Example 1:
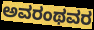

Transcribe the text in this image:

ಅವರಂಥವರ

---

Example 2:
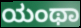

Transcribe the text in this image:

ಯಂಥಾ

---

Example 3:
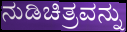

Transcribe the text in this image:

ನುಡಿಚಿತ್ರವನ್ನು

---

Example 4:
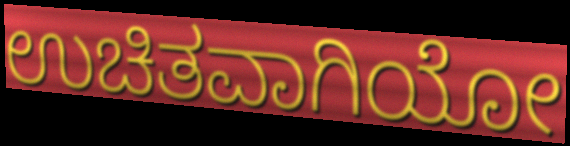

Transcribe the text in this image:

ಉಚಿತವಾಗಿಯೋ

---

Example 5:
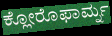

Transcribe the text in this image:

ಕ್ಲೋರೊಫಾರ್ಮ್ನ